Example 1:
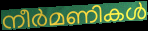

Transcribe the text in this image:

നീർമണികൾ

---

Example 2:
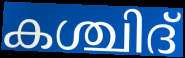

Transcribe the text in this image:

കശ്ചിദ്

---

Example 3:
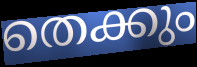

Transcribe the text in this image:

തെക്കും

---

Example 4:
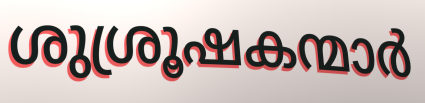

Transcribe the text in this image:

ശുശ്രൂഷകന്മാർ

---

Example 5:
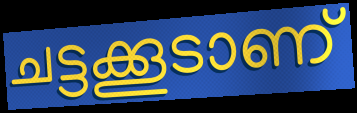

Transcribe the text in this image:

ചട്ടക്കൂടാണ്